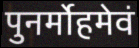
पुनर्मोहमेवं